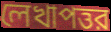
লেখাপত্তর